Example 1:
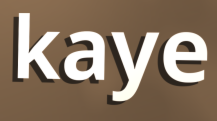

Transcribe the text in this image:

kaye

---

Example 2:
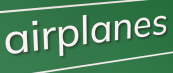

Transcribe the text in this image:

airplanes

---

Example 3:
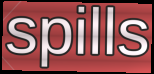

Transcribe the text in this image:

spills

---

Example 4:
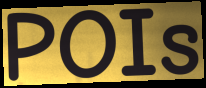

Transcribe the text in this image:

POIs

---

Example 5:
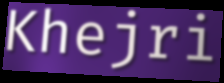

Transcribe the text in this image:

Khejri